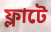
ফ্লাটে